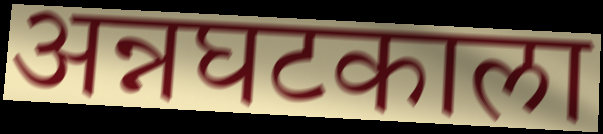
अन्नघटकाला